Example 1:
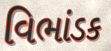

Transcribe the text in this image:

વિભાંડક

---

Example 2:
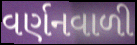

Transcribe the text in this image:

વર્ણનવાળી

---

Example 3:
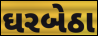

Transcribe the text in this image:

ઘરબેઠા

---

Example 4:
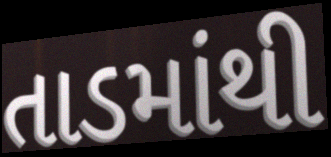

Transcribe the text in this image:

તાડમાંથી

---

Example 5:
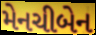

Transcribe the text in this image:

મેનચીબેન